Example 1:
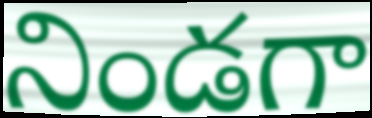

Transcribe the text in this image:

నిండగా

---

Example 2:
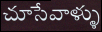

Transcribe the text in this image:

చూసేవాళ్ళు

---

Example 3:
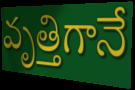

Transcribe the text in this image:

వృత్తిగానే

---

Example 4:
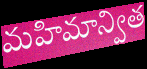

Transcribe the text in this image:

మహిమాన్విత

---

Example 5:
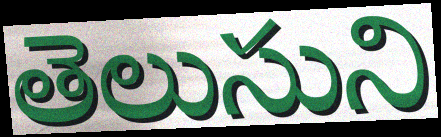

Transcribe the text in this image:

తెలుసుని